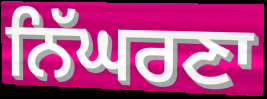
ਨਿੱਘਰਣਾ